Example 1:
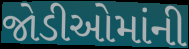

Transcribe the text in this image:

જોડીઓમાંની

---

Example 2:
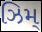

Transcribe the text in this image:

ઝિમ્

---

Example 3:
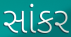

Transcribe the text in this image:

સાંકર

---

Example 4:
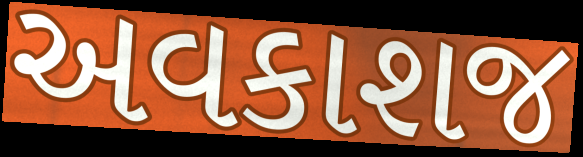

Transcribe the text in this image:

અવકાશજ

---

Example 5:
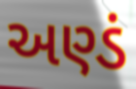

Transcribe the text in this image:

અણ્ડં